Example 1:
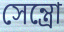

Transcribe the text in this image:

সেন্ত্রো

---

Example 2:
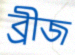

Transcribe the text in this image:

ব্রীজ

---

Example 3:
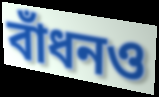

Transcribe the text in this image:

বাঁধনও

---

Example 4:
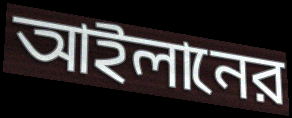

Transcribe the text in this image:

আইলানের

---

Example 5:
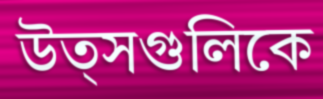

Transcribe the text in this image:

উত্সগুলিকে